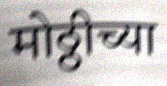
मोठ्ठीच्या